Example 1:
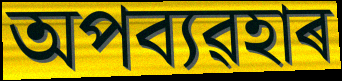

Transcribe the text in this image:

অপব্যৱহাৰ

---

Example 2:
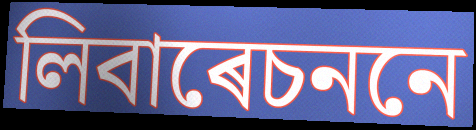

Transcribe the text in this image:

লিবাৰেচননে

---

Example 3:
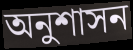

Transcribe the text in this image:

অনুশাসন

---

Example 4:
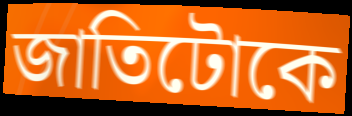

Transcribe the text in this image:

জাতিটোকে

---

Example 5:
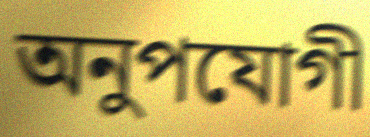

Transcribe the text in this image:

অনুপযোগী